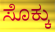
ಸೊಕ್ಕು